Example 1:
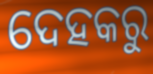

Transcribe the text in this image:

ଦେହକରୁ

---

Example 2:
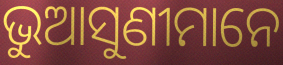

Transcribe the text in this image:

ଭୁଆସୁଣୀମାନେ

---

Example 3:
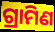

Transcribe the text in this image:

ଗ୍ରାମିଣ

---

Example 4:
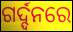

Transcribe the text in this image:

ଗର୍ଦ୍ଦନରେ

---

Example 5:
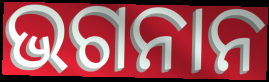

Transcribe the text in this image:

ଭଗନାନ